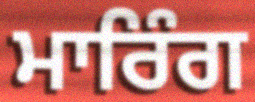
ਮਾਰਿੰਗ